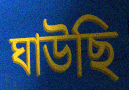
ঘাউছি